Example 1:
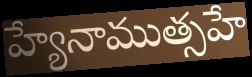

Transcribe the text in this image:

హ్యేనాముత్సహే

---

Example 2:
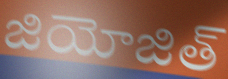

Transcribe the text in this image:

జియోజిత్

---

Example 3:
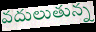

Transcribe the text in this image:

వదులుతున్న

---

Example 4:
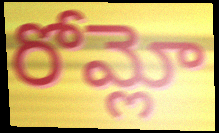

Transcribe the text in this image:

రోమ్లో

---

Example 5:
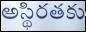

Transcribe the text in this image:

అస్థిరతకు